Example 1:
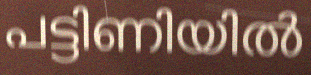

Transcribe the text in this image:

പട്ടിണിയിൽ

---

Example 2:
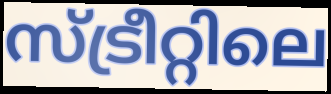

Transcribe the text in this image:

സ്ട്രീറ്റിലെ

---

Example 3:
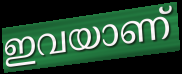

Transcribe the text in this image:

ഇവയാണ്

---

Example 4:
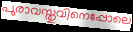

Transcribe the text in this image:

പുരാവസ്തുവിനെപ്പോലെ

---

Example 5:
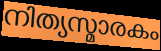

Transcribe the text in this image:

നിത്യസ്മാരകം